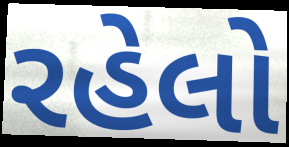
રહેલો